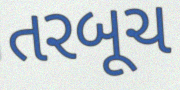
તરબૂચ